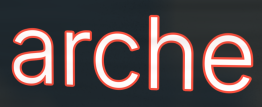
arche